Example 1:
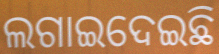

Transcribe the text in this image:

ଲଗାଇଦେଇଛି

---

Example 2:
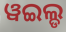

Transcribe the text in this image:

ୱଇଲ୍ଡ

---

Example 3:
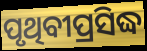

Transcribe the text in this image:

ପୃଥିବୀପ୍ରସିଦ୍ଧ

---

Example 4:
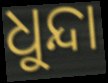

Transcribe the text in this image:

ଧୁନ୍ଦା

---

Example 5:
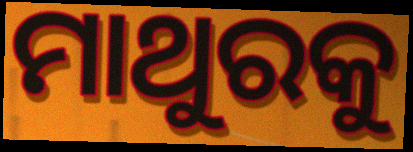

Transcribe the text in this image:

ମାଥୁରକୁ